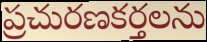
ప్రచురణకర్తలను